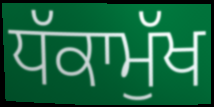
ਧੱਕਾਮੁੱਖ